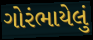
ગોરંભાયેલું